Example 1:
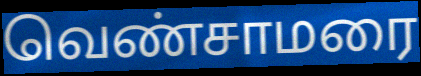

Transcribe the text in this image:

வெண்சாமரை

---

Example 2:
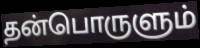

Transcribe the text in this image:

தன்பொருளும்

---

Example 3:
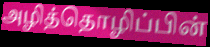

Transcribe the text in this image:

அழித்தொழிப்பின்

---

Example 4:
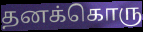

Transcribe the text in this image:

தனக்கொரு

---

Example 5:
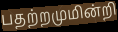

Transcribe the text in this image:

பதற்றமுமின்றி